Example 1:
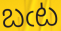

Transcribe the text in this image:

బఁట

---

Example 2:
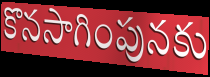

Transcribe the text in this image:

కొనసాగింపునకు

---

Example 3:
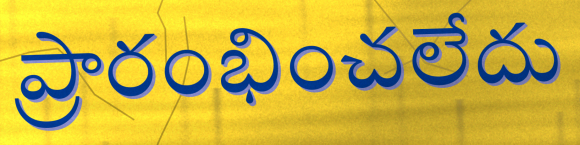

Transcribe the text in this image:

ప్రారంభించలేదు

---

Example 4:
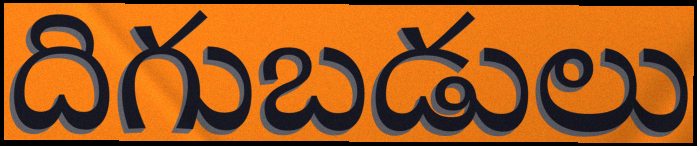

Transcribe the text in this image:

దిగుబడులు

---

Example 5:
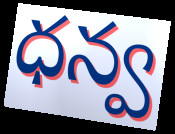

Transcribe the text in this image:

ధన్వ